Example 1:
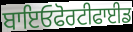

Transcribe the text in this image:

ਬਾਇਓਫੋਰਟੀਫਾਈਡ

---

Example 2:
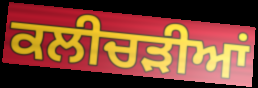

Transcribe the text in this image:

ਕਲੀਚੜੀਆਂ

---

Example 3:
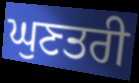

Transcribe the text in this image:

ਘੁਣਤਰੀ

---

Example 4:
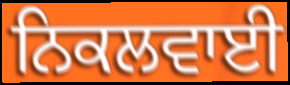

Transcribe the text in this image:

ਨਿਕਲਵਾਈ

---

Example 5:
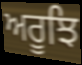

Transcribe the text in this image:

ਅਰੂਝਿ